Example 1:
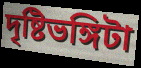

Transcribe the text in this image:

দৃষ্টিভঙ্গিটা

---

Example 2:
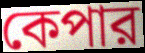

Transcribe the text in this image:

কেপার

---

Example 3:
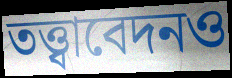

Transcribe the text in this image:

তত্ত্বাবেদনও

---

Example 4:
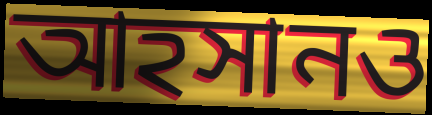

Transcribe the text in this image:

আহসানও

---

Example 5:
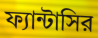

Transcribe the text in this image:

ফ্যান্টাসির